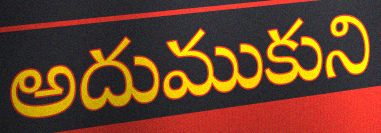
అదుముకుని